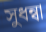
সুধন্বা